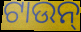
ଟାଉନ୍